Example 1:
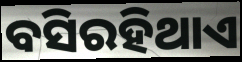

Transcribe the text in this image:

ବସିରହିଥାଏ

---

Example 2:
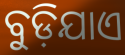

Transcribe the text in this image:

ବୁଡ଼ିଯାଏ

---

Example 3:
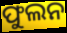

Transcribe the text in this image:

ଫୁଲନ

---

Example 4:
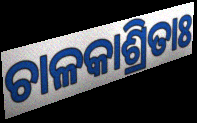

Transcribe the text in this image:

ଚାଳକାଶ୍ରିତାଃ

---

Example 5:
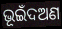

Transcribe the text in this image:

ଭୂଇଁଦଅଣ